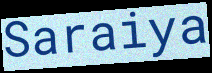
Saraiya